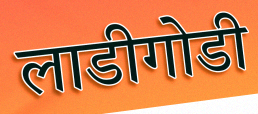
लाडीगोडी